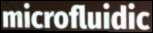
microfluidic